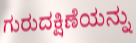
ಗುರುದಕ್ಷಿಣೆಯನ್ನು